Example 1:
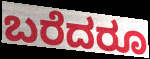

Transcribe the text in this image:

ಬರೆದರೂ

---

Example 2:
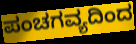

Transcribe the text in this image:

ಪಂಚಗವ್ಯದಿಂದ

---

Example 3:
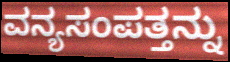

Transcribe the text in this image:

ವನ್ಯಸಂಪತ್ತನ್ನು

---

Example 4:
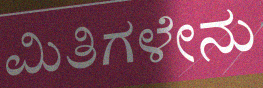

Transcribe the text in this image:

ಮಿತಿಗಳೇನು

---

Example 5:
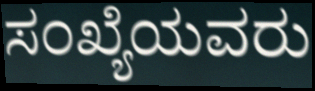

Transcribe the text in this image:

ಸಂಖ್ಯೆಯವರು